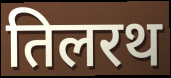
तिलरथ